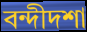
বন্দীদশা